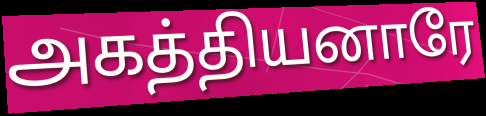
அகத்தியனாரே